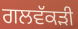
ਗਲਵੱਕੜੀ